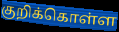
குறிக்கொள்ள